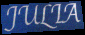
JULIA